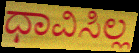
ಧಾವಿಸಿಲ್ಲ